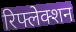
रिफ्लेक्शन